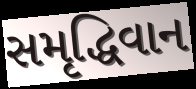
સમૃદ્ધિવાન